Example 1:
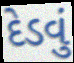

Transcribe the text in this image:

દેડવું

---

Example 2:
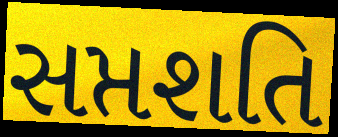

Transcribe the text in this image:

સપ્તશતિ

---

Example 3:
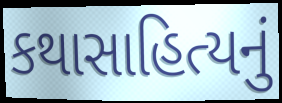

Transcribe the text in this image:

કથાસાહિત્યનું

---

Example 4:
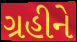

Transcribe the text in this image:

ગ્રહીને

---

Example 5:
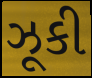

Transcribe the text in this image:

ઝૂકી